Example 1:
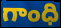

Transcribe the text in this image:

గాంధి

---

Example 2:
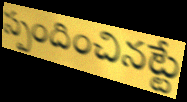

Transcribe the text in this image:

స్పందించినట్టే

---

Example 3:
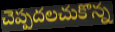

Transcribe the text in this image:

చెప్పదలచుకొన్న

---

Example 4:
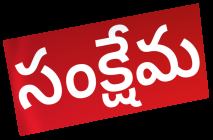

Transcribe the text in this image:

సంక్షేమ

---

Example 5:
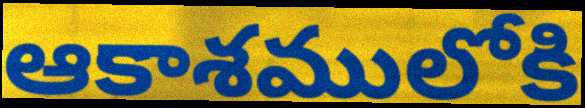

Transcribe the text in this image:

ఆకాశములోకి